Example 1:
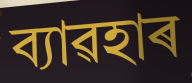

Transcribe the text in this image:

ব্যাৱহাৰ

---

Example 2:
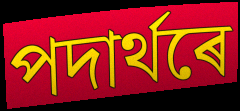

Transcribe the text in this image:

পদাৰ্থৰে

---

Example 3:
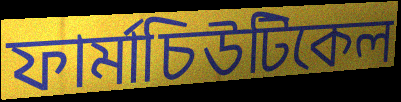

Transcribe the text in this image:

ফাৰ্মাচিউটিকেল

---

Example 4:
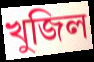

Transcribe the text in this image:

খুজিল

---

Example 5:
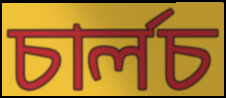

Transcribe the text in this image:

চাৰ্লচ